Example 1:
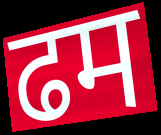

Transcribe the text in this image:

ढम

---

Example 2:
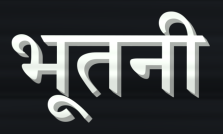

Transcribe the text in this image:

भूतनी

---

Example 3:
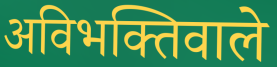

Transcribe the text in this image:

अविभक्तिवाले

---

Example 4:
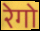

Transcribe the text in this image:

रेगो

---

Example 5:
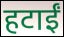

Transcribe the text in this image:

हटाईं